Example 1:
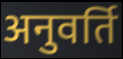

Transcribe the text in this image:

अनुवर्ति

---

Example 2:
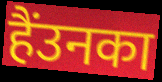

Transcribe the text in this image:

हैंउनका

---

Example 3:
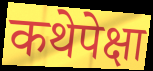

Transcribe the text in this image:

कथेपेक्षा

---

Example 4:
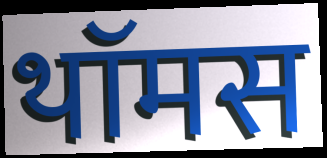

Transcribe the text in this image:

थॉमस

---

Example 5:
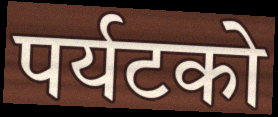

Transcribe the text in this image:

पर्यटको